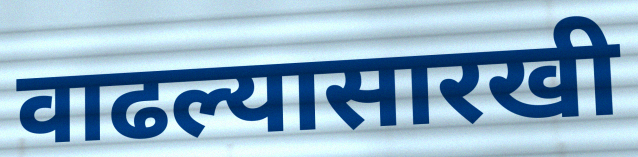
वाढल्यासारखी